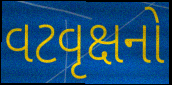
વટવૃક્ષનો